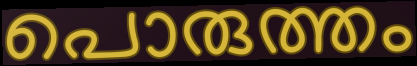
പൊരുത്തം